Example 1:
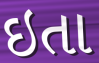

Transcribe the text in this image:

ઇતા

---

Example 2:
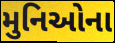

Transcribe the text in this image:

મુનિઓના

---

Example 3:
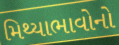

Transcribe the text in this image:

મિથ્યાભાવોનો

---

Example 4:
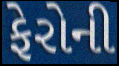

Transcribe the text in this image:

ફેરોની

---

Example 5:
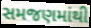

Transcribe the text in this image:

સમજણમાંથી